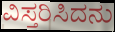
ವಿಸ್ತರಿಸಿದನು